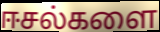
ஈசல்களை